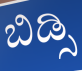
ಬಿಡ್ಸಿ